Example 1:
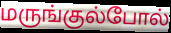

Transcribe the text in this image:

மருங்குல்போல்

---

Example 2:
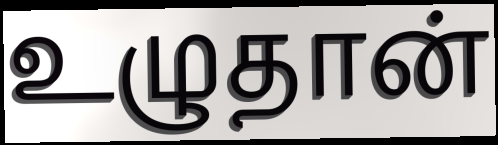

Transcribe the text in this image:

உழுதான்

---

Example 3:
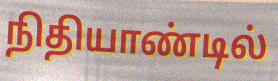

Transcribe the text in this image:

நிதியாண்டில்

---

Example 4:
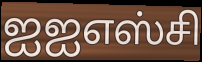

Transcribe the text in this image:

ஐஐஎஸ்சி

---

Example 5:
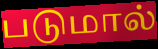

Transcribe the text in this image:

படுமால்